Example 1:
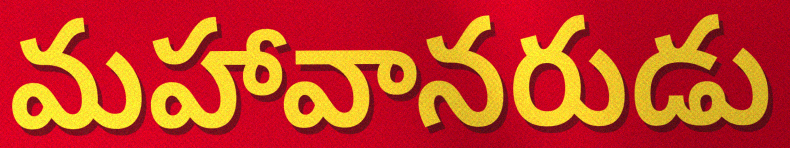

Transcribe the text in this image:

మహావానరుడు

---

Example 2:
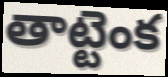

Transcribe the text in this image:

తాట్టెంక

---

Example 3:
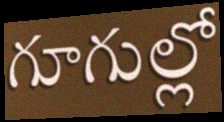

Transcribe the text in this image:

గూగుల్లో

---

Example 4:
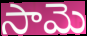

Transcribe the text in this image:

సామె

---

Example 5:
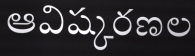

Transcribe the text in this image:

ఆవిష్కరణల